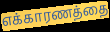
எக்காரணத்தை